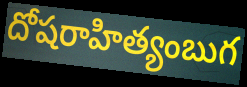
దోషరాహిత్యంబుగ